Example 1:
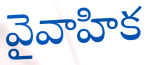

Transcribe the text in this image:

వైవాహిక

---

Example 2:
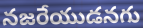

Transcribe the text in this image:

నజరేయుడనగు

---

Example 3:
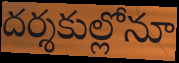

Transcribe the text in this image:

దర్శకుల్లోనూ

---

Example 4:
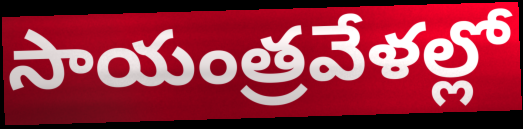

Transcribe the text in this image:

సాయంత్రవేళల్లో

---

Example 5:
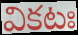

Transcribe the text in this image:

వికటః